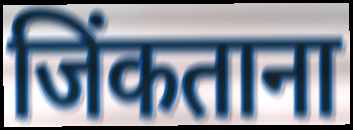
जिंकताना